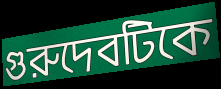
গুরুদেবটিকে